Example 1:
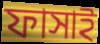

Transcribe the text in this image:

ফাসাই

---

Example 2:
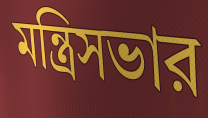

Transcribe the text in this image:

মন্ত্রিসভার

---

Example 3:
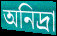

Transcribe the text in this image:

অনিদ্রা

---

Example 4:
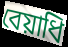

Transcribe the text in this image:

বেয়াধি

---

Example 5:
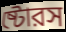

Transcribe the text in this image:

ষ্টোরস